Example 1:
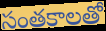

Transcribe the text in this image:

సంతకాలతో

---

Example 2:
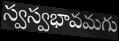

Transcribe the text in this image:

స్వస్వభావమగు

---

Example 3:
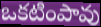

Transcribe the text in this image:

ఒకటింపావు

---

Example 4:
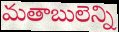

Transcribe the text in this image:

మతాబులెన్ని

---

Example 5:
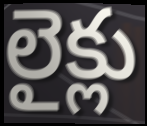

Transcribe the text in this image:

లైక్లు